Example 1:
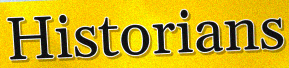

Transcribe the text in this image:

Historians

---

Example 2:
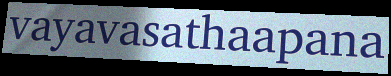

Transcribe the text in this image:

vayavasathaapana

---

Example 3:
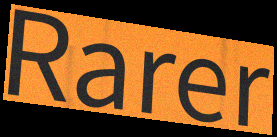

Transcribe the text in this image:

Rarer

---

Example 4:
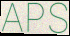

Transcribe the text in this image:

APS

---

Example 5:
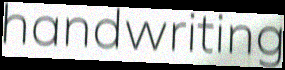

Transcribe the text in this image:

handwriting